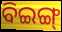
ବିଇଙ୍ଗ୍